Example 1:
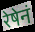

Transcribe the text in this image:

रेषेनं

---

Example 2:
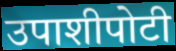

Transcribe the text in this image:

उपाशीपोटी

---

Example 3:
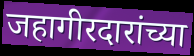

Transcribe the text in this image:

जहागीरदारांच्या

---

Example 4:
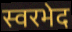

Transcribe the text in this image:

स्वरभेद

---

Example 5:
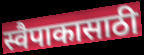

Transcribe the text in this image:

स्वैपाकासाठी